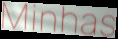
Minhas